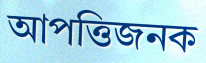
আপত্তিজনক